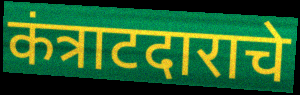
कंत्राटदाराचे